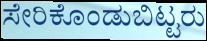
ಸೇರಿಕೊಂಡುಬಿಟ್ಟರು